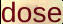
dose